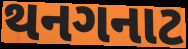
થનગનાટ